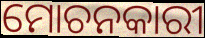
ମୋଚନକାରୀ